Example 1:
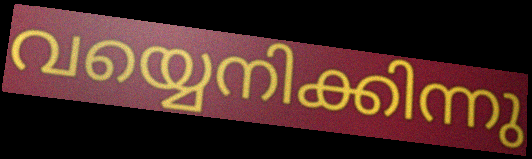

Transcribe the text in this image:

വയ്യെനിക്കിന്നു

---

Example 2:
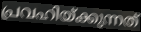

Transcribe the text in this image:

പ്രവഹിയ്ക്കുന്നത്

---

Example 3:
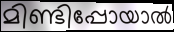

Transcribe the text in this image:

മിണ്ടിപ്പോയാൽ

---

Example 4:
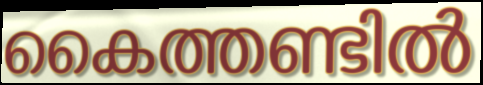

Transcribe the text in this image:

കൈത്തണ്ടിൽ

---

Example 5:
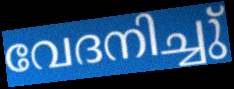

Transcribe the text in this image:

വേദനിച്ചു്